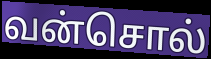
வன்சொல்